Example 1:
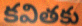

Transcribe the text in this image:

కవితకు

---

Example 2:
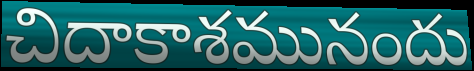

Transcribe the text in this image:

చిదాకాశమునందు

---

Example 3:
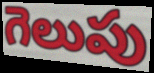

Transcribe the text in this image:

గెలుపు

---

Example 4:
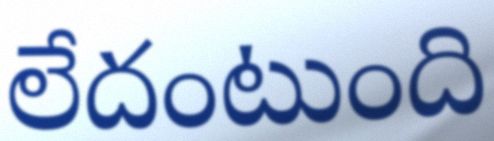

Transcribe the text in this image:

లేదంటుంది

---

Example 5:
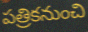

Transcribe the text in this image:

పత్రికనుంచి